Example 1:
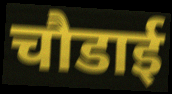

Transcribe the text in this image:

चौडाई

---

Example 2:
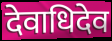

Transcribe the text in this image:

देवाधिदेव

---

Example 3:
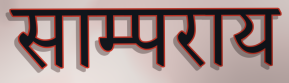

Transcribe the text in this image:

साम्पराय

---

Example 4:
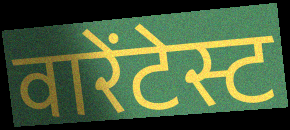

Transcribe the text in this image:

वारेंटेस्ट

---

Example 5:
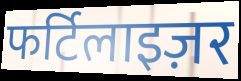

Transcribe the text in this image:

फर्टिलाइज़र